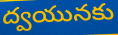
ద్వయునకు